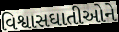
વિશ્વાસઘાતીઓને